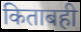
किताबही